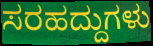
ಸರಹದ್ದುಗಳು